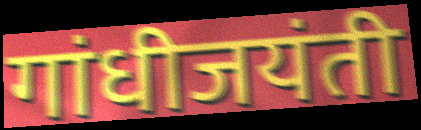
गांधीजयंती